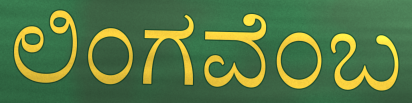
ಲಿಂಗವೆಂಬ